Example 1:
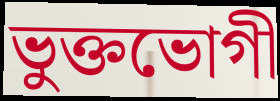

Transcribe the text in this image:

ভুক্তভোগী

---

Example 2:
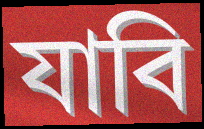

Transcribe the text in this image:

যাবি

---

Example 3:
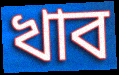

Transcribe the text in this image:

খাব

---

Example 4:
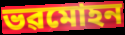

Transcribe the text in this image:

ভৱমোহন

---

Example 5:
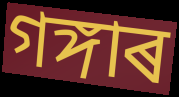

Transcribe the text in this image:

গঙ্গাৰ